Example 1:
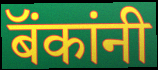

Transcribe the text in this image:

बॅंकांनी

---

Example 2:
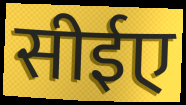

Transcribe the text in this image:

सीईए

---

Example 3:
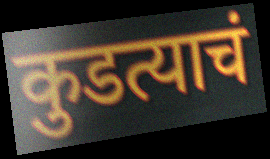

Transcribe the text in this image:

कुडत्याचं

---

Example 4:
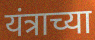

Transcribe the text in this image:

यंत्राच्या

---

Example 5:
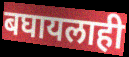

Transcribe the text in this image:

बघायलाही